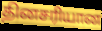
தினசரியான